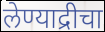
लेण्याद्रीचा